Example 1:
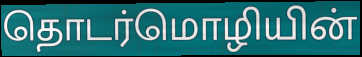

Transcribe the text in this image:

தொடர்மொழியின்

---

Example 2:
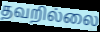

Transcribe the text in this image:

தவறில்லை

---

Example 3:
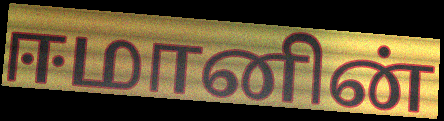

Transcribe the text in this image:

ஈமானின்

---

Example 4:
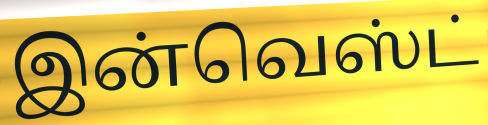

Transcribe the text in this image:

இன்வெஸ்ட்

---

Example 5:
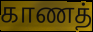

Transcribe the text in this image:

காணத்